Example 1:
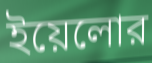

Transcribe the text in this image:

ইয়েলোর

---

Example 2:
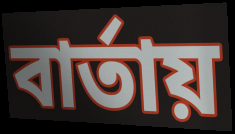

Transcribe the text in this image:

বার্তায়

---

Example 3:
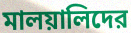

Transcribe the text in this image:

মালয়ালিদের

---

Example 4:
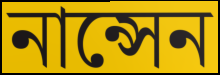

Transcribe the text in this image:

নান্সেন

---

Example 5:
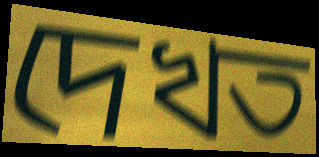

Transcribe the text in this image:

দেখত